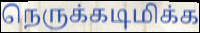
நெருக்கடிமிக்க